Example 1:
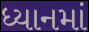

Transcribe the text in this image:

ધ્યાનમાં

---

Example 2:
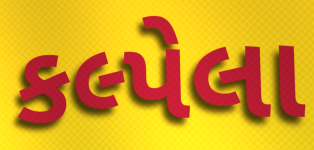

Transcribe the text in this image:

કલ્પેલા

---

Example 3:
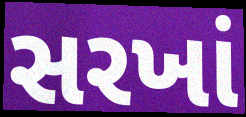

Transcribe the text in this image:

સરખાં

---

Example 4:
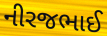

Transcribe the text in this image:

નીરજભાઈ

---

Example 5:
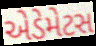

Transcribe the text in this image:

એડેમેટસ